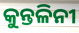
କୁନ୍ତଳିନୀ